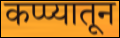
कप्प्यातून